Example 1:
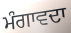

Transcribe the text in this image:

ਮੰਗਾਵਦਾ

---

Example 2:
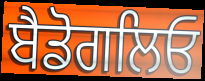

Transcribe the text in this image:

ਬੈਡੋਗਲਿਓ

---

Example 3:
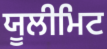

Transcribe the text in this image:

ਯੂਲੀਮਿਟ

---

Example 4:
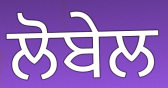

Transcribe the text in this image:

ਲੋਬੇਲ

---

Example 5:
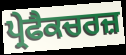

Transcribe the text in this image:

ਪ੍ਰੇਫੈਕਚਰਜ਼